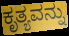
ಕೃತ್ಯವನ್ನು